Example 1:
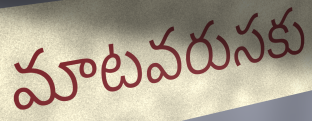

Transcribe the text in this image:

మాటవరుసకు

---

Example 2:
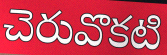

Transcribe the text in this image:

చెరువొకటి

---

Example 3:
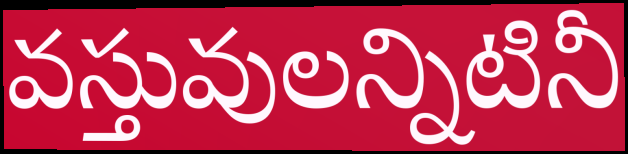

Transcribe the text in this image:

వస్తువులన్నిటినీ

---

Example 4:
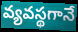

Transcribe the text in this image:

వ్యవస్థగానే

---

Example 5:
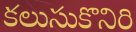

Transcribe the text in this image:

కలుసుకొనిరి